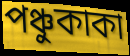
পঞ্চুকাকা